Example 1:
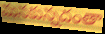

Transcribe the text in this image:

మనకున్నదంతా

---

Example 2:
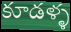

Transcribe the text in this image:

కూడళ్ళ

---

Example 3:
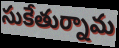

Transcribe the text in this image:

సుకేతుర్నామ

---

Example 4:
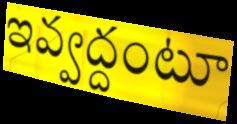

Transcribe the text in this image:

ఇవ్వద్దంటూ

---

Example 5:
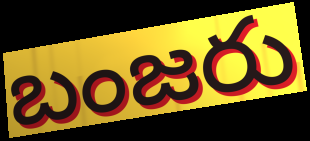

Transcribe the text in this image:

బంజరు